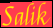
Salik